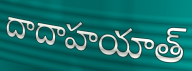
దాదాహయాత్